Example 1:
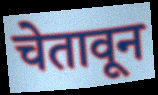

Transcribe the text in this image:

चेतावून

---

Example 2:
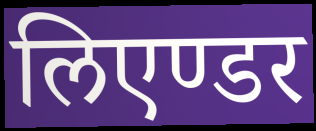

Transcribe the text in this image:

लिएण्डर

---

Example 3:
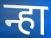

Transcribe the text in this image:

न्हा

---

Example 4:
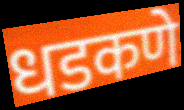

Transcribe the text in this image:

धडकणे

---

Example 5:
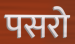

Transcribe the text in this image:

पसरो